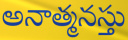
అనాత్మనస్తు